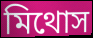
মিথোস